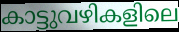
കാട്ടുവഴികളിലെ